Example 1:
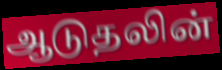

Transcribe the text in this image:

ஆடுதலின்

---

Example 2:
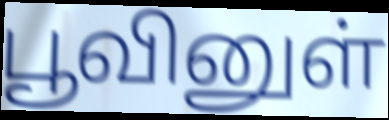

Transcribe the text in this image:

பூவினுள்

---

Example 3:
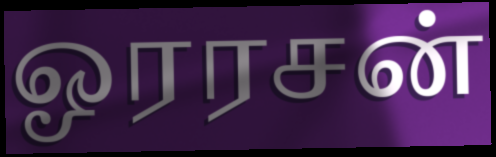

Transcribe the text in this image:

ஓரரசன்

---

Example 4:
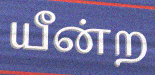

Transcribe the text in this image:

யீன்ற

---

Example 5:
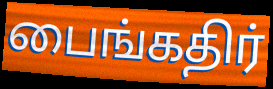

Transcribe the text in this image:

பைங்கதிர்